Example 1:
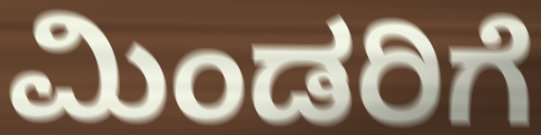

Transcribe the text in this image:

ಮಿಂಡರಿಗೆ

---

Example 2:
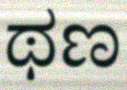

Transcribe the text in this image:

ಥಣ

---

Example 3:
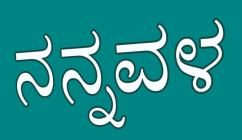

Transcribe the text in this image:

ನನ್ನವಳ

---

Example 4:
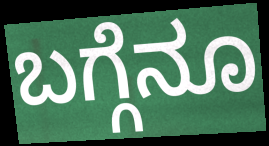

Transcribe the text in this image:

ಬಗ್ಗೆನೂ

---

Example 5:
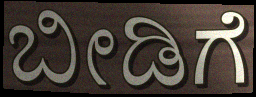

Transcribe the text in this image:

ಬೀಡಿಗೆ